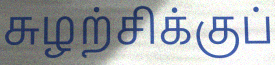
சுழற்சிக்குப்